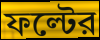
ফল্টের